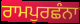
ਰਾਮਪੁਰਛੰਨਾ